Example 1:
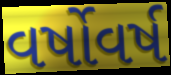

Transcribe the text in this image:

વર્ષોવર્ષ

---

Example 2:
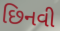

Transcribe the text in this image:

છિનવી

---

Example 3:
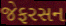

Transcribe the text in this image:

જેફરસન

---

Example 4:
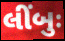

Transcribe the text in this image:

લીંબુઃ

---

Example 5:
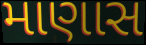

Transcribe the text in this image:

માણાસ